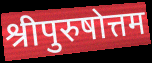
श्रीपुरुषोत्तम